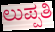
ಲುಪ್ಪತಿ